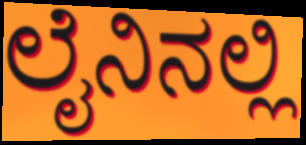
ಲೈನಿನಲ್ಲಿ